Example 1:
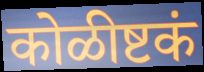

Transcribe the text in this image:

कोळीष्टकं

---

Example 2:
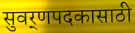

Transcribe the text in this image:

सुवर्णपदकासाठी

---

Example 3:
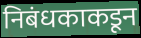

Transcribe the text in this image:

निबंधकाकडून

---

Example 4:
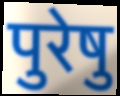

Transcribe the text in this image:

पुरेषु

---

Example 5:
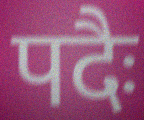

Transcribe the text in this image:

पदैः